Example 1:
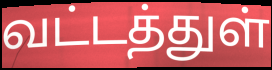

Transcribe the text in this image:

வட்டத்துள்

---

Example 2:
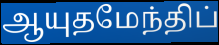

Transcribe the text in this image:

ஆயுதமேந்திப்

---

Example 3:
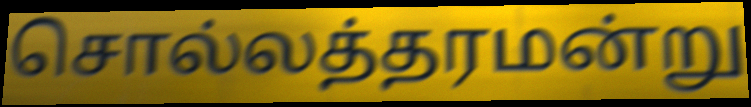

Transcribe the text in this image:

சொல்லத்தரமன்று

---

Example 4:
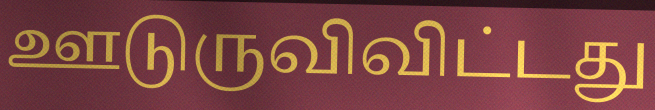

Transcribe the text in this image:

ஊடுருவிவிட்டது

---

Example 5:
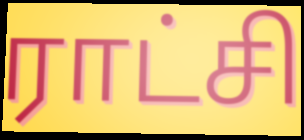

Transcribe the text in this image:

ராட்சி